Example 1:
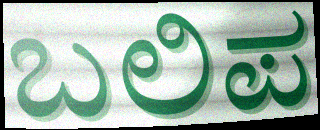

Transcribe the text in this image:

ಬಲಿಪ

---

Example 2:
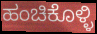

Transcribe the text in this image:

ಹಂಚಿಕೊಳ್ಳಿ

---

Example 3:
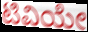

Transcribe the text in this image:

ಟಿವಿಯೇ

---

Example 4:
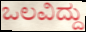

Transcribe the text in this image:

ಒಲವಿದ್ದು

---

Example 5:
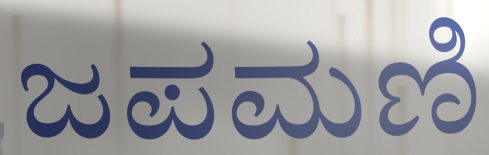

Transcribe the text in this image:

ಜಪಮಣಿ